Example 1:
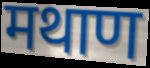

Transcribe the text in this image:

मथाण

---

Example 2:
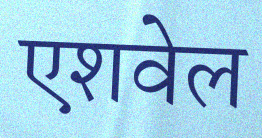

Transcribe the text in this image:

एशवेल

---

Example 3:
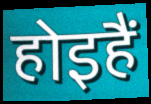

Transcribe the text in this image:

होइहैं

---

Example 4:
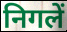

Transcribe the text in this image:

निगलें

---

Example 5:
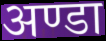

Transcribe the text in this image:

अण्डा